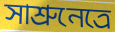
সাশ্রুনেত্রে